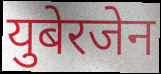
युबेरजेन